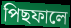
পিছফালে